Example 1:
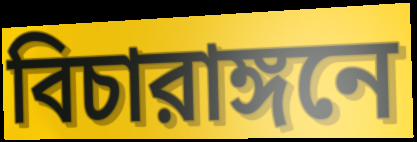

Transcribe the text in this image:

বিচারাঙ্গনে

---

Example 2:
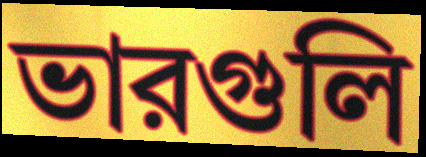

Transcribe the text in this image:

ভারগুলি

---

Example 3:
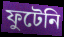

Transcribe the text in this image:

ফুটেনি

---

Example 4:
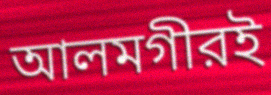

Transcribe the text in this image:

আলমগীরই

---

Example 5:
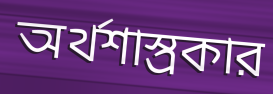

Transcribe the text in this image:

অর্থশাস্ত্রকার